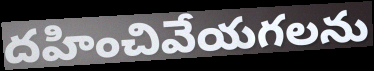
దహించివేయగలను